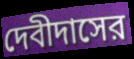
দেবীদাসের